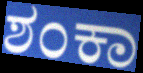
ಶಂಕಾ